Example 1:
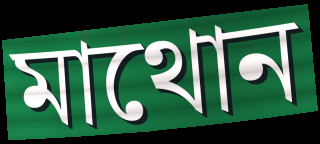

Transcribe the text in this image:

মাথোন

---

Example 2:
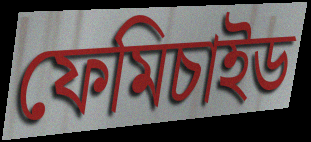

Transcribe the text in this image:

ফেমিচাইড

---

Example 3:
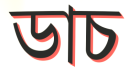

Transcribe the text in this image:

ডাচ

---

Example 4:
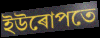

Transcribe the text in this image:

ইউৰোপতে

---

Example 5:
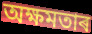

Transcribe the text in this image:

অক্ষমতাৰ